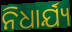
ନିଧାର୍ଯ୍ୟ